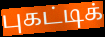
புகட்டிக்